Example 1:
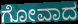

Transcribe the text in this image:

ಗೋವಾದ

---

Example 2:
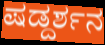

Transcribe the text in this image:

ಷಡ್ದರ್ಶನ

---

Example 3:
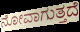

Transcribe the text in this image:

ನೋವಾಗುತ್ತದೆ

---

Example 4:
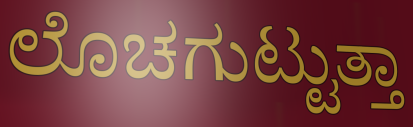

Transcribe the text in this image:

ಲೊಚಗುಟ್ಟುತ್ತಾ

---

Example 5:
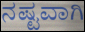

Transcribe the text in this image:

ನಷ್ಟವಾಗಿ